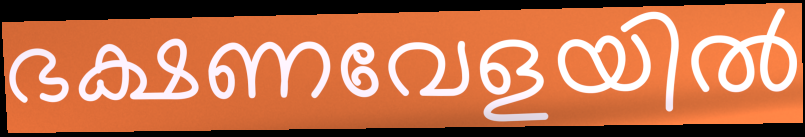
ഭക്ഷണവേളയിൽ